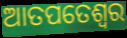
ଆତପତେଶ୍ୱର